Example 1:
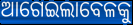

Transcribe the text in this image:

ଆଗେଇଲାବେଳକୁ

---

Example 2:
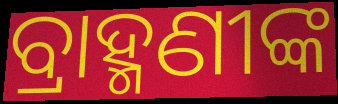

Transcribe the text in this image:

ବ୍ରାହ୍ମଣୀଙ୍କ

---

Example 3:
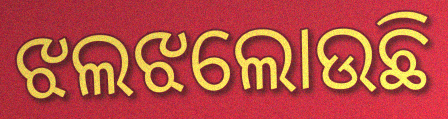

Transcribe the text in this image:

ଝଲଝଲୋଉଛି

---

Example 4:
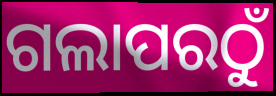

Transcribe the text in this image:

ଗଲାପରଠୁଁ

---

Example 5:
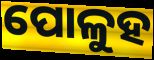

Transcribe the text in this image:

ପୋଳୁହ